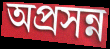
অপ্রসন্ন